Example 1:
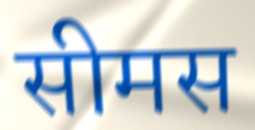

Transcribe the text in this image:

सीमस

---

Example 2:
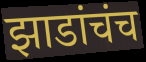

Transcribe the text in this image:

झाडांचंच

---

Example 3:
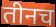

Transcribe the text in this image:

तीनच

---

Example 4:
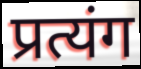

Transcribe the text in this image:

प्रत्यंग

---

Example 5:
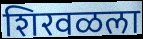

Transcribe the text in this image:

शिरवळला